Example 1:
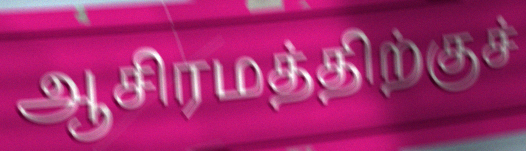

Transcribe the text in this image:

ஆசிரமத்திற்குச்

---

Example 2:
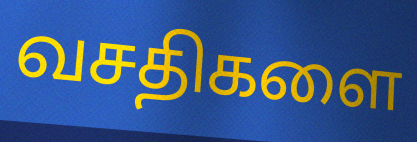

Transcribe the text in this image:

வசதிகளை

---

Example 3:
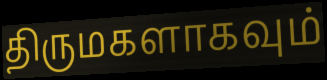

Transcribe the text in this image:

திருமகளாகவும்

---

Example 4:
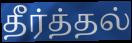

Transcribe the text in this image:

தீர்த்தல்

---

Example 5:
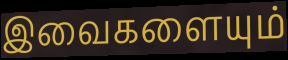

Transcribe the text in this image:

இவைகளையும்